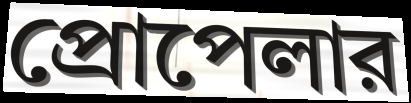
প্রোপেলার